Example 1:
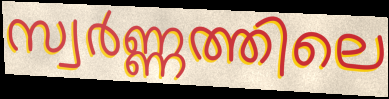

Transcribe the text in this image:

സ്വർണ്ണത്തിലെ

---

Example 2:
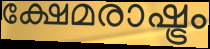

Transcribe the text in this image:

ക്ഷേമരാഷ്ട്രം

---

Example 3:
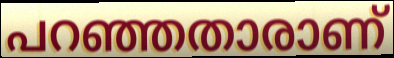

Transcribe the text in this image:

പറഞ്ഞതാരാണ്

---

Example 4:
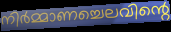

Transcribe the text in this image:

നിർമ്മാണച്ചെലവിന്റെ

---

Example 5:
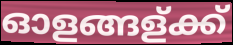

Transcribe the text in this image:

ഓളങ്ങള്ക്ക്